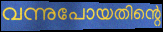
വന്നുപോയതിന്റെ